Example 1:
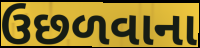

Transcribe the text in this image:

ઉછળવાના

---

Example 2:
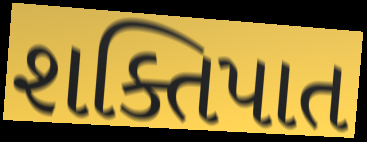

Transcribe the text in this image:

શક્તિપાત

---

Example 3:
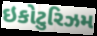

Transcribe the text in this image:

ઇકોટુરિઝમ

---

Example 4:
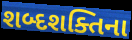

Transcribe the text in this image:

શબ્દશક્તિના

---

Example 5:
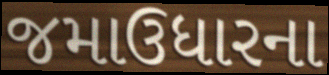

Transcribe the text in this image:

જમાઉધારના